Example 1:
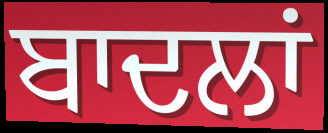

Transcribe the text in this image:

ਬਾਦਲਾਂ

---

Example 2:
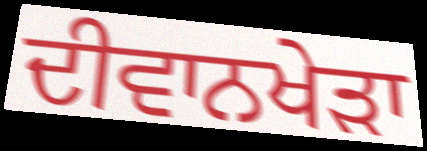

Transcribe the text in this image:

ਦੀਵਾਨਖੇੜਾ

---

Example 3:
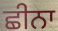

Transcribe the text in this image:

ਛੀਨਾ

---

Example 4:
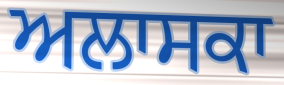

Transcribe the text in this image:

ਅਲਾਸਕਾ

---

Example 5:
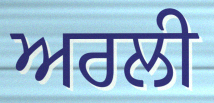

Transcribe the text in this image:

ਅਰਲੀ